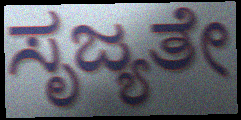
ಸೃಜ್ಯತೇ